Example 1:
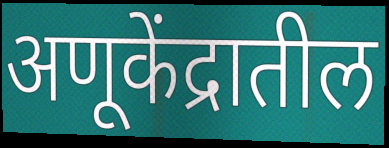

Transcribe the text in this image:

अणूकेंद्रातील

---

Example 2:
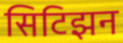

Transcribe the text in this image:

सिटिझन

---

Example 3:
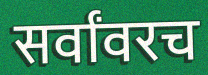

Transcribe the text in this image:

सर्वांवरच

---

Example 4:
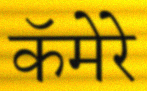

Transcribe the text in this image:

कॅमेरे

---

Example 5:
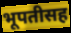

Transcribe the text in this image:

भूपतीसह